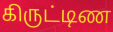
கிருட்டிண